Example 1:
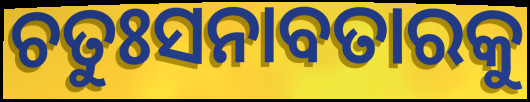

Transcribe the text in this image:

ଚତୁଃସନାବତାରକୁ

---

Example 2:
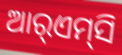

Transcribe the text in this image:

ଆର୍‌ଏମ୍‌ସି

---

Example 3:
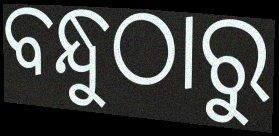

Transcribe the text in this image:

ବନ୍ଧୁଠାରୁ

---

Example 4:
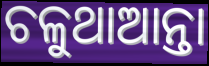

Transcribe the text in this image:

ଚଳୁଥାଆନ୍ତା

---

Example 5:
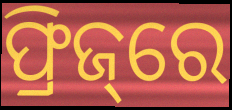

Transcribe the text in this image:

ଫ୍ରିଜ୍‌ରେ